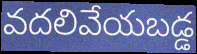
వదలివేయబడ్డ